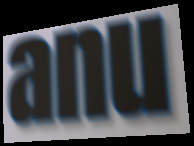
anu